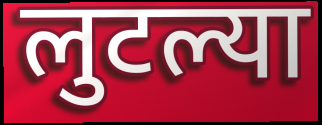
लुटल्या